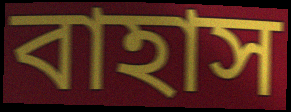
বাহাস